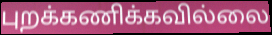
புறக்கணிக்கவில்லை